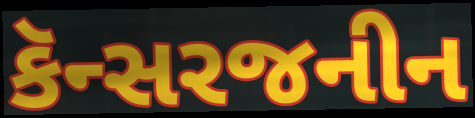
કૅન્સરજનીન